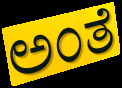
ಅಂತೆ